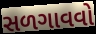
સળગાવવો